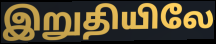
இறுதியிலே